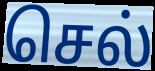
செல்